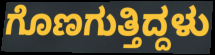
ಗೊಣಗುತ್ತಿದ್ದಳು